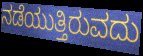
ನಡೆಯುತ್ತಿರುವದು